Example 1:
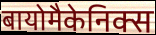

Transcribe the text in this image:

बायोमैकेनिक्स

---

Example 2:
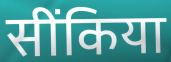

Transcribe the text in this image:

सींकिया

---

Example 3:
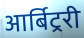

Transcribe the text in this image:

आर्बिट्ररी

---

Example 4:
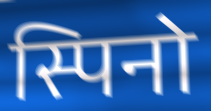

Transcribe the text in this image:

स्पिनो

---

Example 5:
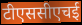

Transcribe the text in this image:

टीएससीएचई